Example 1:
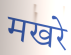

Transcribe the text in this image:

मखरे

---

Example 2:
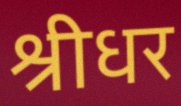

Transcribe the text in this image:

श्रीधर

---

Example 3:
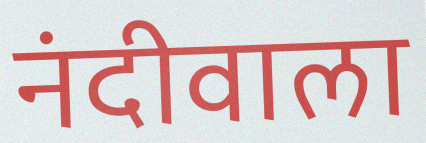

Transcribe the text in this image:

नंदीवाला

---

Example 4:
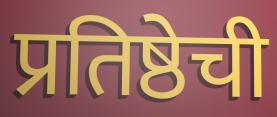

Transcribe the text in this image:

प्रतिष्ठेची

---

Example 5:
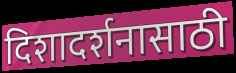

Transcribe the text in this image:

दिशादर्शनासाठी